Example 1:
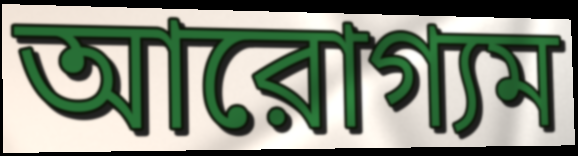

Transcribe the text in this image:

আরোগ্যম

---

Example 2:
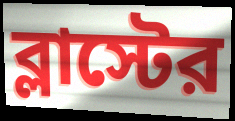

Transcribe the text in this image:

ব্লাস্টের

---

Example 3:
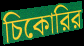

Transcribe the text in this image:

চিকোরির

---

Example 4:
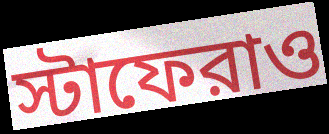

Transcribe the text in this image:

স্টাফেরাও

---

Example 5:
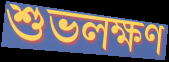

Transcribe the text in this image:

শুভলক্ষণ